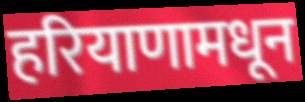
हरियाणामधून